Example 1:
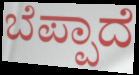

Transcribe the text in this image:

ಬೆಪ್ಪಾದೆ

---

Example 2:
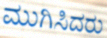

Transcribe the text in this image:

ಮುಗಿಸಿದರು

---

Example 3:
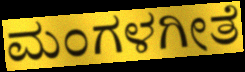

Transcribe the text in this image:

ಮಂಗಳಗೀತೆ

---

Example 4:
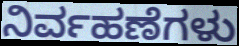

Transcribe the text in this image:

ನಿರ್ವಹಣೆಗಳು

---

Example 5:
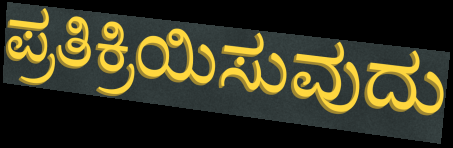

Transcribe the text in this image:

ಪ್ರತಿಕ್ರಿಯಿಸುವುದು